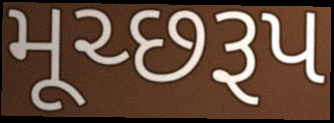
મૂચ્છરૂપ